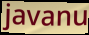
javanu